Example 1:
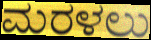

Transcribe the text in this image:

ಮರಳಲು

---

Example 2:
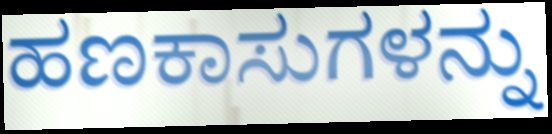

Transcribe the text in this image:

ಹಣಕಾಸುಗಳನ್ನು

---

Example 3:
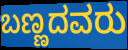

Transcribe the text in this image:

ಬಣ್ಣದವರು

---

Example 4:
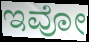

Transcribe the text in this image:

ಇವೋ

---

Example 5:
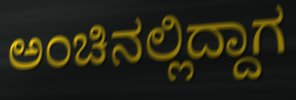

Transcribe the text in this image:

ಅಂಚಿನಲ್ಲಿದ್ದಾಗ